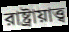
রাষ্ট্রায়াত্ত্ব